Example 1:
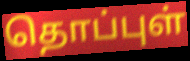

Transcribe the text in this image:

தொப்புள்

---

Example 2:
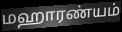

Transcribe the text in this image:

மஹாரண்யம்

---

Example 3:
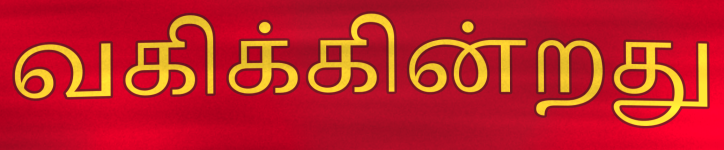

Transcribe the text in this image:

வகிக்கின்றது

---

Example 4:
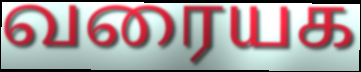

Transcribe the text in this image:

வரையக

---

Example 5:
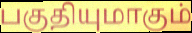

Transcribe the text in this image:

பகுதியுமாகும்